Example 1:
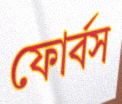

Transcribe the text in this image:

ফোর্বস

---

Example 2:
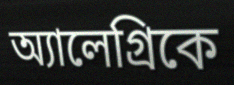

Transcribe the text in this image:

অ্যালেগ্রিকে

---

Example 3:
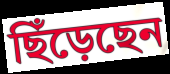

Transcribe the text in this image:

ছিঁড়েছেন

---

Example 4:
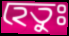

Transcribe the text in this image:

হেতুঃ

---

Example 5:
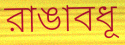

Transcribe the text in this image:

রাঙাবধূ